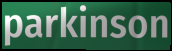
parkinson